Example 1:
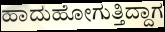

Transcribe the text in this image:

ಹಾದುಹೋಗುತ್ತಿದ್ದಾಗ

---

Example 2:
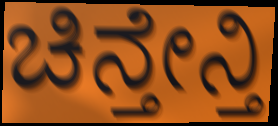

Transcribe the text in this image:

ಚಿನ್ತೇನ್ತಿ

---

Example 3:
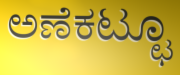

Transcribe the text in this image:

ಅಣೆಕಟ್ಟೂ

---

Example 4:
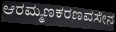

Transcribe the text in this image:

ಆರಮ್ಮಣಕರಣವಸೇನ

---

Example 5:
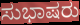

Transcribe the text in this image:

ಸುಭಾಷರು